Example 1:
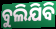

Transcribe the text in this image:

ବୁଲିଯିବି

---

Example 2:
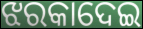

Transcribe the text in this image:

ଝରକାଦେଇ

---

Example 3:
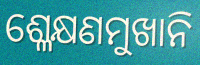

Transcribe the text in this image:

ଶ୍ଳେକ୍ଷଣମୁଖାନି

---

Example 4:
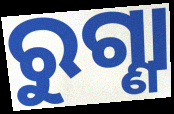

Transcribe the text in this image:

ରୁଗ୍ଣା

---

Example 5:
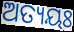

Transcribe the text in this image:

ଅତ୍ୟୟଃ